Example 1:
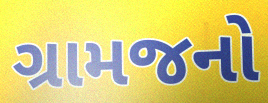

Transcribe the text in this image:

ગ્રામજનો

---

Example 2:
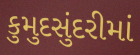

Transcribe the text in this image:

કુમુદસુંદરીમાં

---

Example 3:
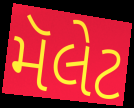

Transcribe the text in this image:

મૅલેટ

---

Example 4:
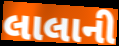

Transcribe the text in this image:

લાલાની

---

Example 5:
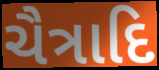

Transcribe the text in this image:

ચૈત્રાદિ